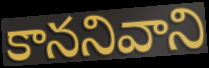
కాననివాని